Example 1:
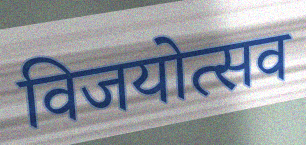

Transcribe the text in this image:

विजयोत्सव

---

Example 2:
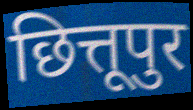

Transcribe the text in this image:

छित्तूपुर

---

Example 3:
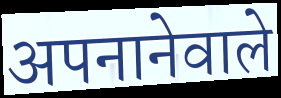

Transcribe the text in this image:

अपनानेवाले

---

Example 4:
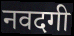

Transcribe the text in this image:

नवदगी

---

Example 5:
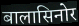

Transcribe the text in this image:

बालासिनोर